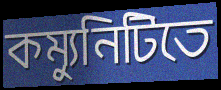
কম্যুনিটিতে